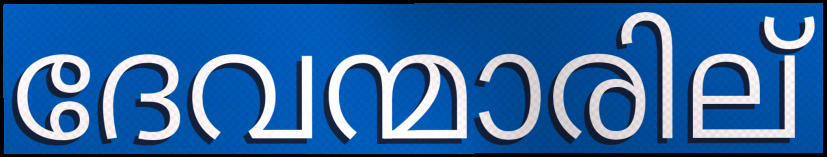
ദേവന്മാരില്